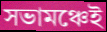
সভামঞ্চেই